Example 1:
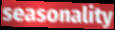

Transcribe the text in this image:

seasonality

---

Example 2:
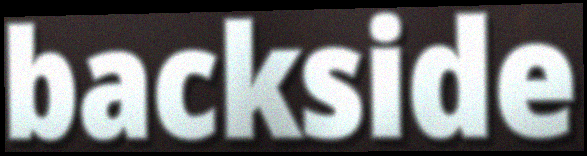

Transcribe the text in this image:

backside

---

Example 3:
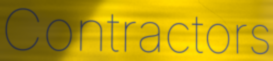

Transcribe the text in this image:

Contractors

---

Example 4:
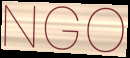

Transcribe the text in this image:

NGO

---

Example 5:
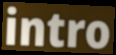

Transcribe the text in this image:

intro